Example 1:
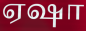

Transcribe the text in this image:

ஏஷா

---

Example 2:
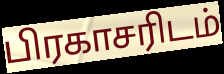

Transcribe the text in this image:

பிரகாசரிடம்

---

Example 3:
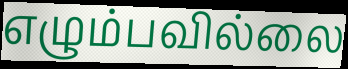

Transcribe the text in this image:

எழும்பவில்லை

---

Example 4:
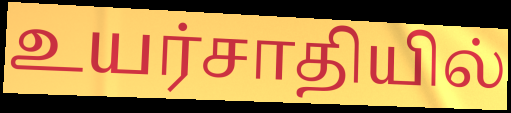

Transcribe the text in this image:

உயர்சாதியில்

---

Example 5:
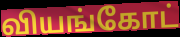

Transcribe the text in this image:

வியங்கோட்